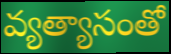
వ్యత్యాసంతో